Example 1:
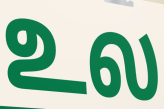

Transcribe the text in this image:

உல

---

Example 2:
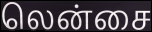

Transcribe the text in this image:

லென்சை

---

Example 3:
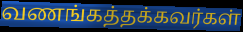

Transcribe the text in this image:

வணங்கத்தக்கவர்கள்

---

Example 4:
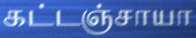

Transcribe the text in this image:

கட்டஞ்சாயா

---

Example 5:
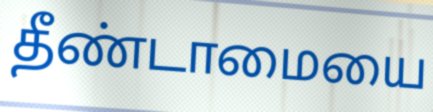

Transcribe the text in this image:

தீண்டாமையை